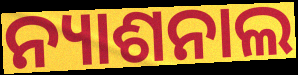
ନ୍ୟାଶନାଲ